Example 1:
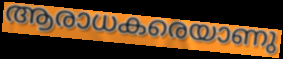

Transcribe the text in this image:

ആരാധകരെയാണു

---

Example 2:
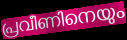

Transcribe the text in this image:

പ്രവീണിനെയും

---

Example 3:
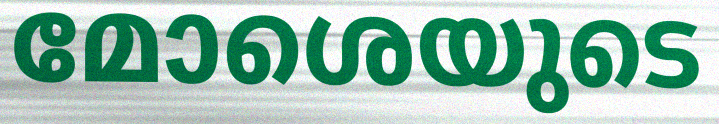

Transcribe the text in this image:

മോശെയുടെ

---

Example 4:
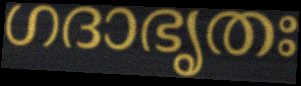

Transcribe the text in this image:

ഗദാഭൃതഃ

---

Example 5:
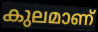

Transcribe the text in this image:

കുലമാണ്